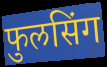
फुलसिंग